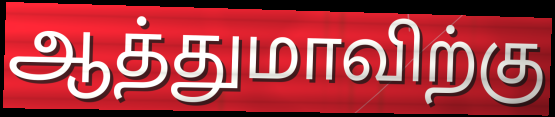
ஆத்துமாவிற்கு